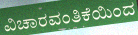
ವಿಚಾರವಂತಿಕೆಯಿಂದ